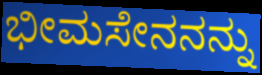
ಭೀಮಸೇನನನ್ನು